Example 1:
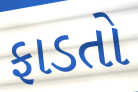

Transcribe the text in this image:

ફાડતો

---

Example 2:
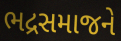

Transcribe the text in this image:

ભદ્રસમાજને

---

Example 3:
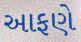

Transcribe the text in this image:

આફણે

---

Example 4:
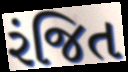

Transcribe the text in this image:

રંજિત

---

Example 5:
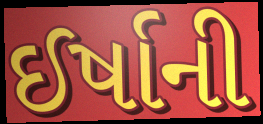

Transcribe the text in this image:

ઈર્ષાની